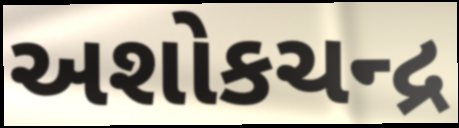
અશોકચન્દ્ર